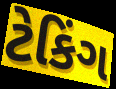
ટેકિંગ